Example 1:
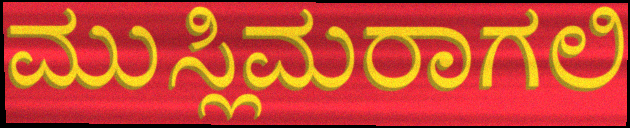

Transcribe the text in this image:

ಮುಸ್ಲಿಮರಾಗಲಿ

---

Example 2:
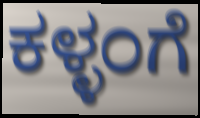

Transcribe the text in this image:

ಕಳ್ಳಂಗೆ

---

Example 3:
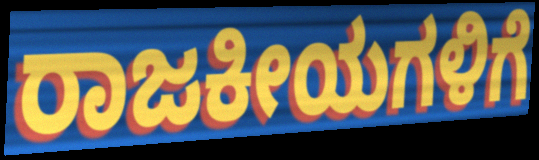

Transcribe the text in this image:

ರಾಜಕೀಯಗಳಿಗೆ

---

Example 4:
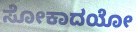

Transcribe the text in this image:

ಸೋಕಾದಯೋ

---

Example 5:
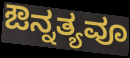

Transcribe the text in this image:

ಔನ್ನತ್ಯವೂ